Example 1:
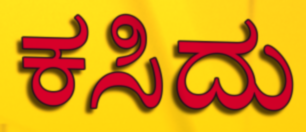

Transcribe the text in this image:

ಕಸಿದು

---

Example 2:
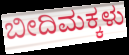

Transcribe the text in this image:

ಬೀದಿಮಕ್ಕಳು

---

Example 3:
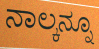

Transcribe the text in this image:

ನಾಲ್ಕನ್ನೂ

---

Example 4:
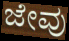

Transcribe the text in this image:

ಜೇವು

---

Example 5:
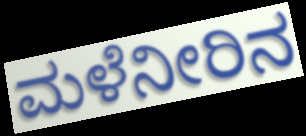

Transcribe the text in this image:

ಮಳೆನೀರಿನ